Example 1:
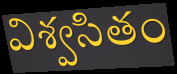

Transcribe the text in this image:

విశ్వసితం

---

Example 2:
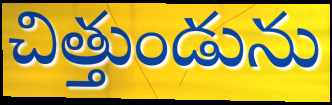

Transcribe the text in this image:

చిత్తుండును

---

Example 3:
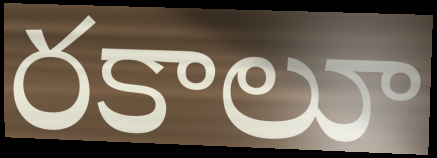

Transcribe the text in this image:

రకాలూ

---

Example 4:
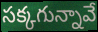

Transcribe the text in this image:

సక్కగున్నావే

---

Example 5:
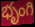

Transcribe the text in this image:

భృంగి